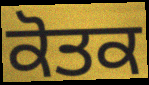
ਕੋਤਕ